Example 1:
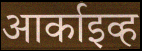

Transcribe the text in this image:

आर्काइव्ह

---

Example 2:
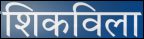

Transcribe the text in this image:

शिकविला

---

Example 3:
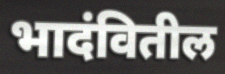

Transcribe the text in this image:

भादंवितील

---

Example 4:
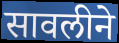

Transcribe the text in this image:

सावलीने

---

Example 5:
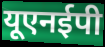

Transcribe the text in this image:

यूएनईपी